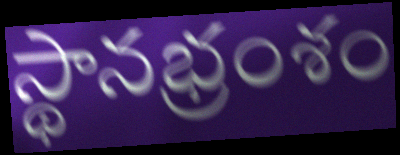
స్థానభ్రంశం